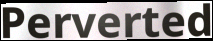
Perverted